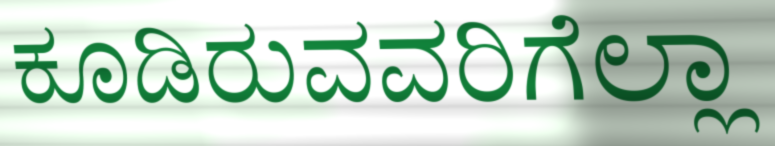
ಕೂಡಿರುವವರಿಗೆಲ್ಲಾ